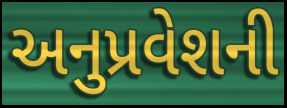
અનુપ્રવેશની